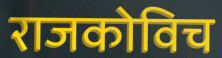
राजकोविच